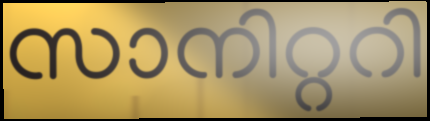
സാനിറ്ററി